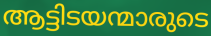
ആട്ടിടയന്മാരുടെ